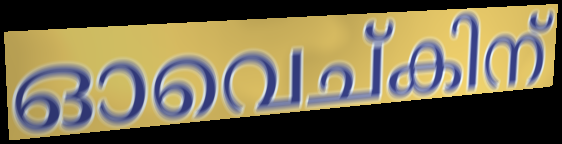
ഓവെച്കിന്